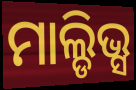
ମାଲ୍ଡିଭ୍ସ